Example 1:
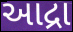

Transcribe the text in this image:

આદ્રા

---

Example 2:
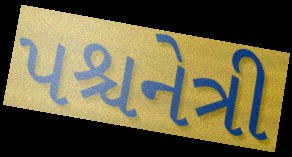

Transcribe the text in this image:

પશ્ચનેત્રી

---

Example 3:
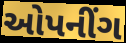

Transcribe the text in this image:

ઓપનીંગ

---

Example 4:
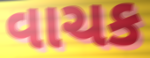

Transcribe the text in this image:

વાચક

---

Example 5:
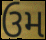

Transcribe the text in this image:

ઉમ